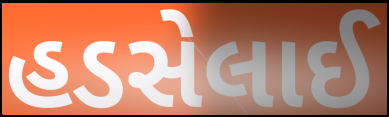
હડસેલાઈ